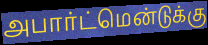
அபார்ட்மென்டுக்கு